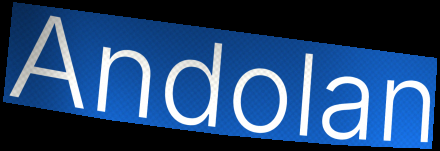
Andolan